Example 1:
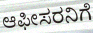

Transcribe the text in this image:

ಆಫೀಸರನಿಗೆ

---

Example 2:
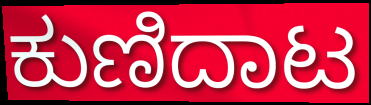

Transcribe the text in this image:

ಕುಣಿದಾಟ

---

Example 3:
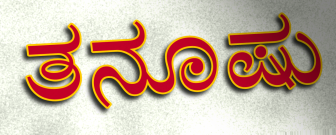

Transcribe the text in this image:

ತನೂಷು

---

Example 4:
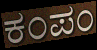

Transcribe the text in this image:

ಕಂಪಂ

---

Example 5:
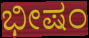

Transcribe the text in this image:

ಭೀಷಂ